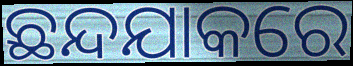
ଛନ୍ଦଯାକରେ